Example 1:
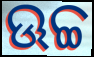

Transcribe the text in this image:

ଊଚ୍ଚ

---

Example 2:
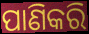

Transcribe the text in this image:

ପାଣିକରି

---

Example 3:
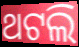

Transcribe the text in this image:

ଥଟଲି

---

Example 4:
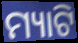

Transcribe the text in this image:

ମ୍ୟାଟି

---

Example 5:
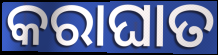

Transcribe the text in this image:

କରାଘାତ